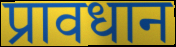
प्रावधान